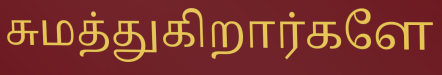
சுமத்துகிறார்களே